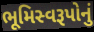
ભૂમિસ્વરૂપોનું